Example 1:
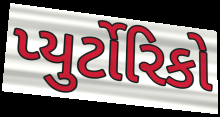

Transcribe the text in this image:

પ્યુર્ટોરિકો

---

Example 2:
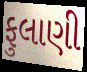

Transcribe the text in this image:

ફુલાણી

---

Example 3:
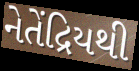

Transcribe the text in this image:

નેતેંદ્રિયથી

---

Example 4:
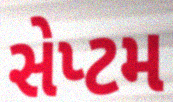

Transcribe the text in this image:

સેપ્ટમ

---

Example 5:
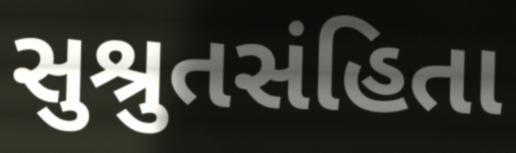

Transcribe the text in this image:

સુશ્રુતસંહિતા